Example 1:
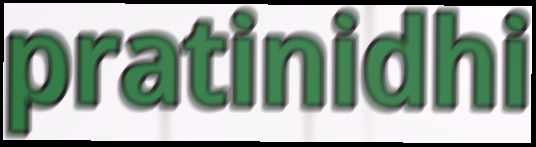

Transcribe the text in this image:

pratinidhi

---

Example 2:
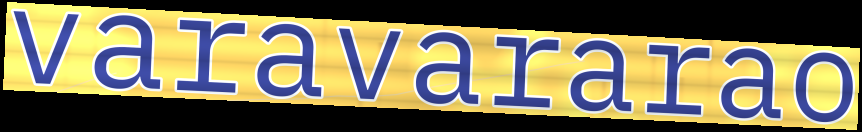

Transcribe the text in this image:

varavararao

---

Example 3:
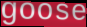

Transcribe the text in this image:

goose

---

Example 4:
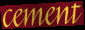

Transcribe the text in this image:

cement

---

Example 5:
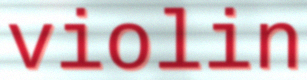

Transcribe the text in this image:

violin